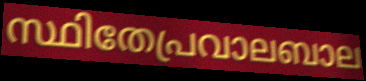
സ്ഥിതേപ്രവാലബാല